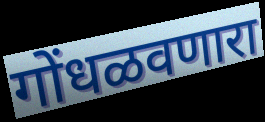
गोंधळवणारा